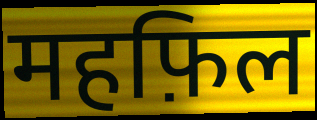
महफ़िल